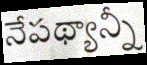
నేపథ్యాన్నీ